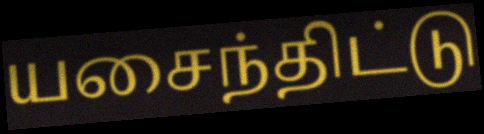
யசைந்திட்டு